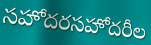
సహోదరసహోదరీల